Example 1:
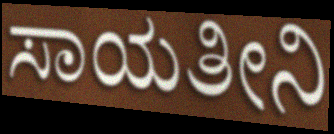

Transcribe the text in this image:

ಸಾಯತೀನಿ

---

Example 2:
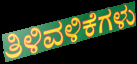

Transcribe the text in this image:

ತಿಳಿವಳಿಕೆಗಳು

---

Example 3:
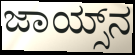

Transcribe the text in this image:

ಜಾಯ್ಸ್‌ನ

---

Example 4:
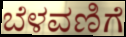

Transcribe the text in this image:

ಬೆಳವಣಿಗೆ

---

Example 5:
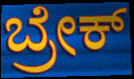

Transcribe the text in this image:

ಬ್ರೇಕ್